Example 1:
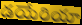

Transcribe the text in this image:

డయేరియా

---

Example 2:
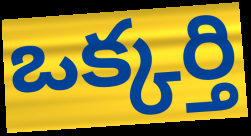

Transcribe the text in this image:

ఒక్కర్తి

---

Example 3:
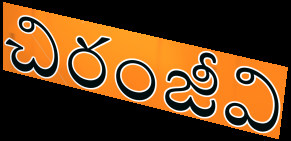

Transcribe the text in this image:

చిరంజీవి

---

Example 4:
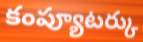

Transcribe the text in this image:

కంప్యూటర్కు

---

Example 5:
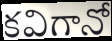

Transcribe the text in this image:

కవిగానో